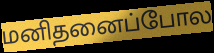
மனிதனைப்போல